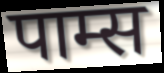
पाम्स